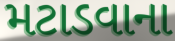
મટાડવાના